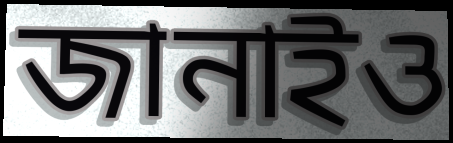
জানাইও